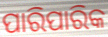
ପାରିପାରିକ